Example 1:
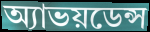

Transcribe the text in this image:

অ্যাভয়ডেন্স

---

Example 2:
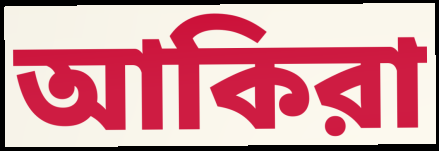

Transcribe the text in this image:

আকিরা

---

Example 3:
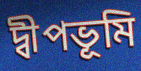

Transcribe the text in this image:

দ্বীপভূমি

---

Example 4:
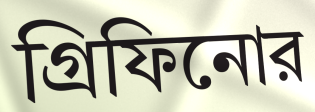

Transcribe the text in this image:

গ্রিফিনোর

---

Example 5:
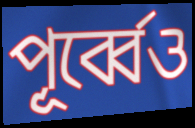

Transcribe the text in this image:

পূর্ব্বেও